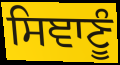
ਸਿਞਾਣੂੰ